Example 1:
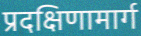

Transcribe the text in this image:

प्रदक्षिणामार्ग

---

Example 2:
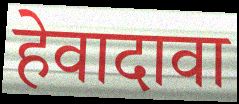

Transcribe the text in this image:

हेवादावा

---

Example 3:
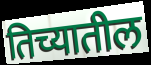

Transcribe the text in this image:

तिच्यातील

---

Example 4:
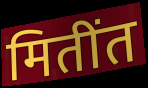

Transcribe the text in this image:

मितींत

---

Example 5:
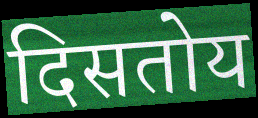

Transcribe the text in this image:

दिसतोय